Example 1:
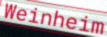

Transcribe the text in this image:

Weinheim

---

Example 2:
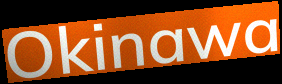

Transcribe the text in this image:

Okinawa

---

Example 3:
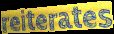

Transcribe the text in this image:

reiterates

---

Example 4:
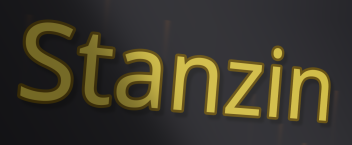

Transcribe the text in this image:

Stanzin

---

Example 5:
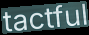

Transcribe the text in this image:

tactful